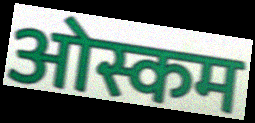
ओस्कम